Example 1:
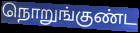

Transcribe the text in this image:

நொறுங்குண்ட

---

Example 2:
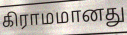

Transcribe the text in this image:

கிராமமானது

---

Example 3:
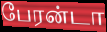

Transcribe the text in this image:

பேரன்டா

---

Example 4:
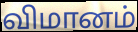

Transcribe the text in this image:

விமானம்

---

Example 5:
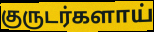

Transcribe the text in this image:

குருடர்களாய்